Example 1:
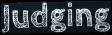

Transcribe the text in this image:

Judging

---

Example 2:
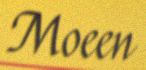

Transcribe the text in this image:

Moeen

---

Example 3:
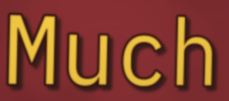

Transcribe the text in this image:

Much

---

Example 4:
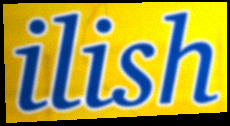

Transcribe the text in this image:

ilish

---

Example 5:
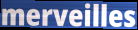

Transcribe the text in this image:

merveilles